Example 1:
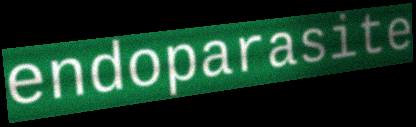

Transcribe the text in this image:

endoparasite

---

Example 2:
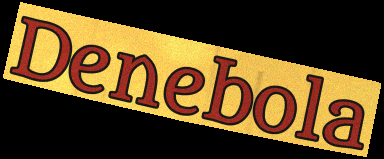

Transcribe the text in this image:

Denebola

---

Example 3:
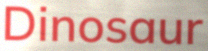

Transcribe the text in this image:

Dinosaur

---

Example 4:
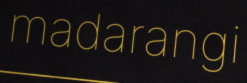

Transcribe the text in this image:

madarangi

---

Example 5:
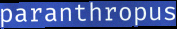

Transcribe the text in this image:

paranthropus